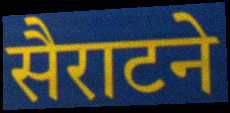
सैराटने